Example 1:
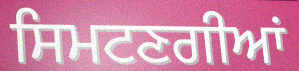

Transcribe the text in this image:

ਸਿਮਟਣਗੀਆਂ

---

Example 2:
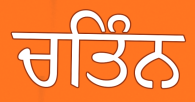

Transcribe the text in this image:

ਚਤਿੰਨ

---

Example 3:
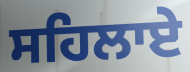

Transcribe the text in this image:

ਸਹਿਲਾਏ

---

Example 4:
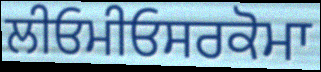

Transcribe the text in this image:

ਲੀਓਮੀਓਸਰਕੋਮਾ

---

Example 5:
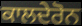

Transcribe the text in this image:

ਕਾਲਦੇਰੋਨ